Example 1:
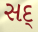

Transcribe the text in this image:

સદ્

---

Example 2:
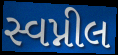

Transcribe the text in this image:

સ્વપ્નીલ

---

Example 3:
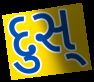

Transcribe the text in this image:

દુસ્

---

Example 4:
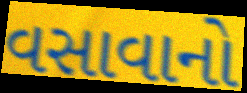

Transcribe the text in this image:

વસાવાનો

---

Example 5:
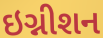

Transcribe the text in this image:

ઇગ્નીશન